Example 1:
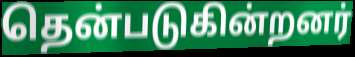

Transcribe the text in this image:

தென்படுகின்றனர்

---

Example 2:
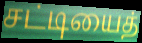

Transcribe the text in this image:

சட்டியைத்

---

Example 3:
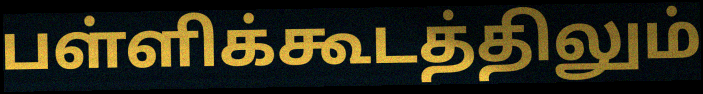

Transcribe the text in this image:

பள்ளிக்கூடத்திலும்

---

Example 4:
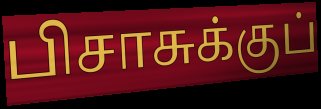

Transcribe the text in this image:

பிசாசுக்குப்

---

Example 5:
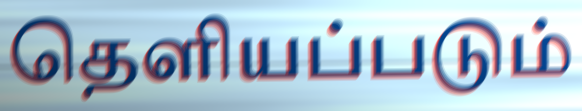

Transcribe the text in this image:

தெளியப்படும்